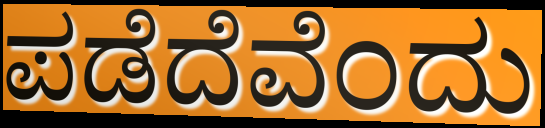
ಪಡೆದೆವೆಂದು